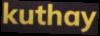
kuthay